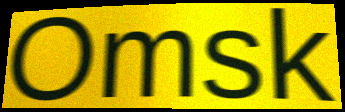
Omsk